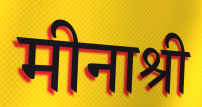
मीनाश्री